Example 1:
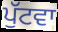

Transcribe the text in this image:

ਪੁੱਟਵਾ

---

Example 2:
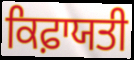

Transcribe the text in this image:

ਕਿਫ਼ਾਯਤੀ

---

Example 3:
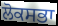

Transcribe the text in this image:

ਲੋਕਸਭਾ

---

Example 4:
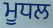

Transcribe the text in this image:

ਮੂਧਲ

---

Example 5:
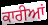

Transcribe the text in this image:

ਕਾਰੀਆਂ